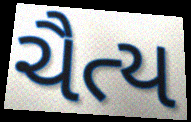
ચૈત્ય